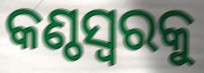
କଣ୍ଠସ୍ୱରକୁ